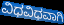
ವಿಧವಿಧವಾಗಿ